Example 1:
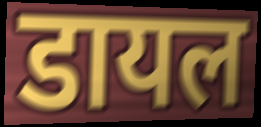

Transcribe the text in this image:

डायल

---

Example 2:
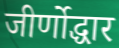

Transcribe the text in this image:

जीर्णोद्धार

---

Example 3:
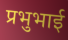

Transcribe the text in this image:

प्रभुभाई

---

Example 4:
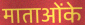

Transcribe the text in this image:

माताओंके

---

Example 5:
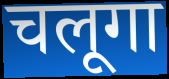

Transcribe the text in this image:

चलूगा